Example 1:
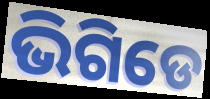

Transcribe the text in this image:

ଭିଗିଡେ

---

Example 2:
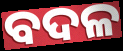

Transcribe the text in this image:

ବଦଳ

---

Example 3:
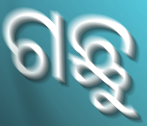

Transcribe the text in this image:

ଗଛୁ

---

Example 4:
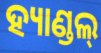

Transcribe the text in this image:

ହ୍ୟାଣ୍ଡଲ୍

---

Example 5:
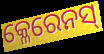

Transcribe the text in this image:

କ୍ଳେରେନସ୍